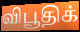
விபூதிக்